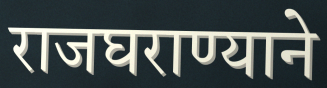
राजघराण्याने